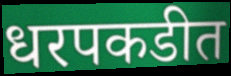
धरपकडीत